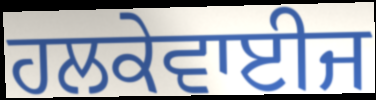
ਹਲਕੇਵਾਈਜ